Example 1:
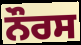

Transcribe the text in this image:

ਨੌਰਸ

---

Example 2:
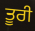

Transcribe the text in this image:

ਤੂਰੀ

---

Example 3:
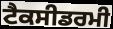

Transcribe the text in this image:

ਟੈਕਸੀਡਰਮੀ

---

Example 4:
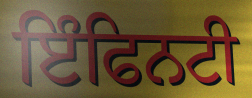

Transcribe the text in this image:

ਇੰਫਿਨਟੀ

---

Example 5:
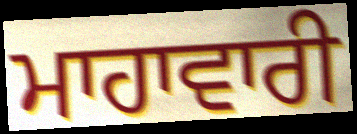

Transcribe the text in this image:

ਮਾਹਾਵਾਰੀ